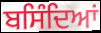
ਬਸਿੰਦਿਆਂ